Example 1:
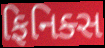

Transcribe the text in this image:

ફિનિક્સ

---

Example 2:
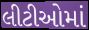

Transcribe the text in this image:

લીટીઓમાં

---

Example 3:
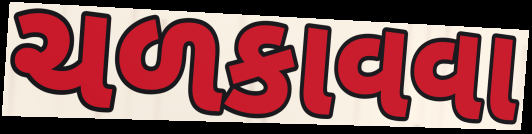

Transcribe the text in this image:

ચળકાવવા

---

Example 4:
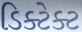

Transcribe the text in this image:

ડિક્ટેક્ટ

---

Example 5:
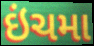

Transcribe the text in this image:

ઇંચમા